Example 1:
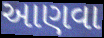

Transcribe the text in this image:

આણવા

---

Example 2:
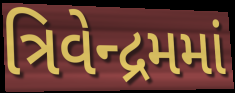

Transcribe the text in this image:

ત્રિવેન્દ્રમમાં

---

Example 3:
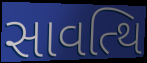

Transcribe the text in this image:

સાવત્થિ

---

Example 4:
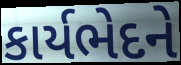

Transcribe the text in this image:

કાર્યભેદને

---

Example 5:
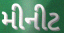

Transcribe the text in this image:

મીનીટ